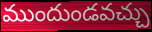
ముందుండవచ్చు